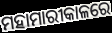
ମହାମାରୀକାଳରେ